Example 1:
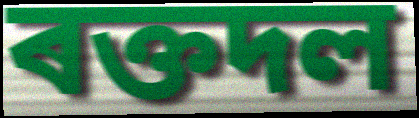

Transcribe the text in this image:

ৰক্তদল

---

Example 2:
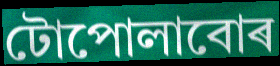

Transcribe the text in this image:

টোপোলাবোৰ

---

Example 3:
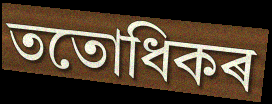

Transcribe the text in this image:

ততোধিকৰ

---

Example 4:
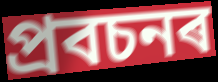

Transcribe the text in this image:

প্ৰবচনৰ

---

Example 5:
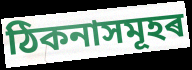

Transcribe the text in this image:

ঠিকনাসমূহৰ